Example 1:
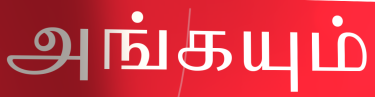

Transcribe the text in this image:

அங்கயும்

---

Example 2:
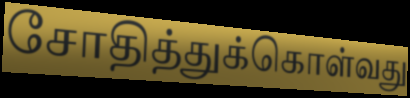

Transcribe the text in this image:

சோதித்துக்கொள்வது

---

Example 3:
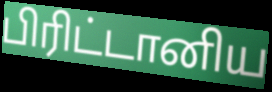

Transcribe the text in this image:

பிரிட்டானிய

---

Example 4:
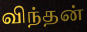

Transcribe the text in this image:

விந்தன்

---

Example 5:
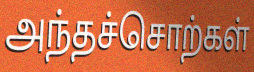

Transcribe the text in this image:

அந்தச்சொற்கள்